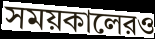
সময়কালেরও